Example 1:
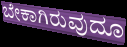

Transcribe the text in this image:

ಬೇಕಾಗಿರುವುದೂ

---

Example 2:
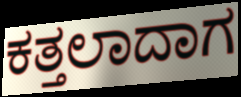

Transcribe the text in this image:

ಕತ್ತಲಾದಾಗ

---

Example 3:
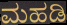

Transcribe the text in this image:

ಮಹಡಿ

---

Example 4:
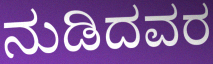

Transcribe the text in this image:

ನುಡಿದವರ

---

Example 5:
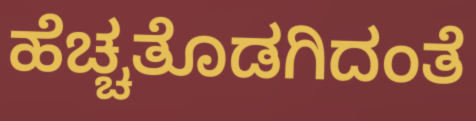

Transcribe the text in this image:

ಹೆಚ್ಚತೊಡಗಿದಂತೆ